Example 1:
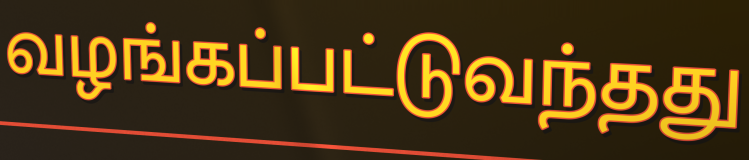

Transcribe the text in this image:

வழங்கப்பட்டுவந்தது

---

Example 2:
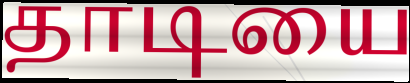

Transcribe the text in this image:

தாடியை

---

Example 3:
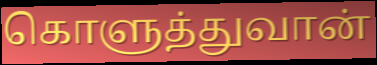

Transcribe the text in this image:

கொளுத்துவான்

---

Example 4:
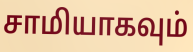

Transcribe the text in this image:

சாமியாகவும்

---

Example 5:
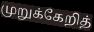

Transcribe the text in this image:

முறுக்கேறித்